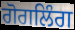
ਗੋਗਲਿੰਗ